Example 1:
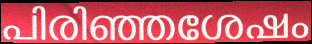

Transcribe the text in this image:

പിരിഞ്ഞശേഷം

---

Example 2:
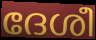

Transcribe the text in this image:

ദേശീ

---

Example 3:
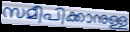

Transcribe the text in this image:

സമീപിക്കാനുള്ള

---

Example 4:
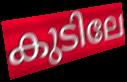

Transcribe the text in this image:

കുടിലേ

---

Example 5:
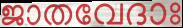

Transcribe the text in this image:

ജാതവേദാഃ